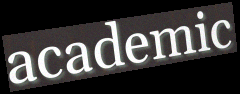
academic